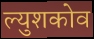
ल्युशकोव